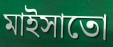
মাইসাতো